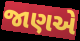
જાણએ